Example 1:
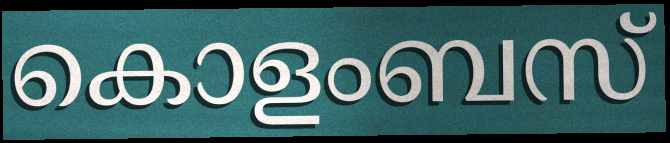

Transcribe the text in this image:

കൊളംബസ്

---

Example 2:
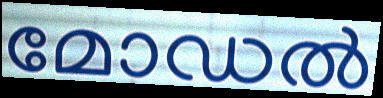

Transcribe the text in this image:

മോഡൽ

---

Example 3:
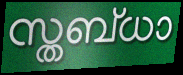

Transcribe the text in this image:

സ്തബ്ധാ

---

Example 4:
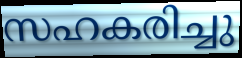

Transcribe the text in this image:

സഹകരിച്ചു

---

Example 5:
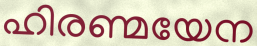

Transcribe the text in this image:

ഹിരണ്മയേന